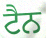
ਟੈਨ